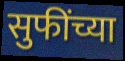
सुफींच्या